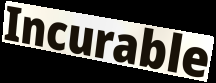
Incurable